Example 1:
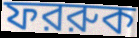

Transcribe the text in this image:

ফররুক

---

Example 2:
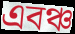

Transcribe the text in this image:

এবঞ্চ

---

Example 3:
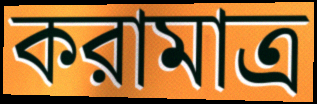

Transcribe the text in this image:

করামাত্র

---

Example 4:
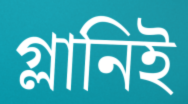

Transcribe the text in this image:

গ্লানিই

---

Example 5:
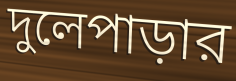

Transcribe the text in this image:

দুলেপাড়ার